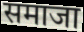
समाजा